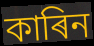
কাৰিন